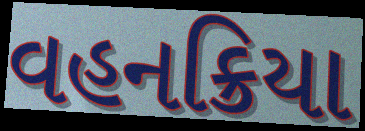
વહનક્રિયા